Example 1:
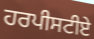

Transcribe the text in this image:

ਹਰਪੀਸਟੀਏ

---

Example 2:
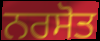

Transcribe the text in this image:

ਨਰਸੋਤ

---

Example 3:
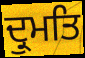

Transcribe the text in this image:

ਦ੍ਰੁਮਤਿ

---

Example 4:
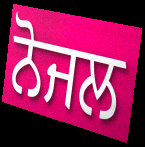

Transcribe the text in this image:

ਨੋਜਲ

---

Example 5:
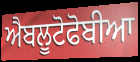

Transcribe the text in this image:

ਐਬਲੂਟੋਫੋਬੀਆ